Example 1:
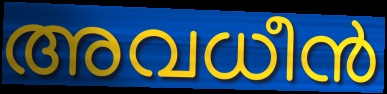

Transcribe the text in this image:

അവധീൻ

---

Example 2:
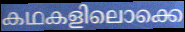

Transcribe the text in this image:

കഥകളിലൊക്കെ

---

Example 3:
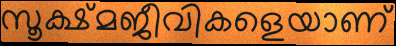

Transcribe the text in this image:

സൂക്ഷ്മജീവികളെയാണ്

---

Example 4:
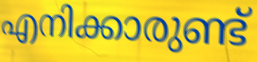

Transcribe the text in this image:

എനിക്കാരുണ്ട്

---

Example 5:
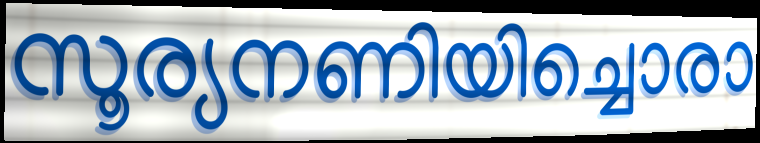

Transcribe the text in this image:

സൂര്യനണിയിച്ചൊരാ